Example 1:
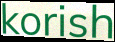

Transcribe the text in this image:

korish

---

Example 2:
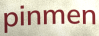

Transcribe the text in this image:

pinmen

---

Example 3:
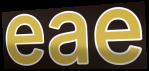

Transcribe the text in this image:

eae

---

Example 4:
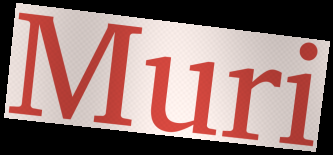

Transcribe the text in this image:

Muri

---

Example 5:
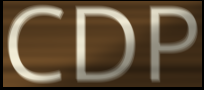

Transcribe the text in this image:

CDP